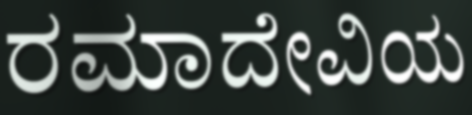
ರಮಾದೇವಿಯ